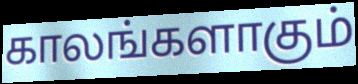
காலங்களாகும்